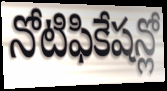
నోటిఫికేషన్లో